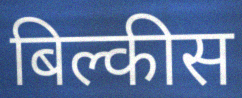
बिल्कीस